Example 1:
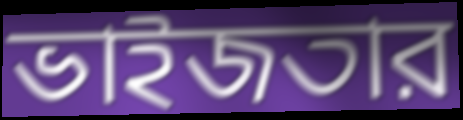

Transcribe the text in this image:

ভাইজতার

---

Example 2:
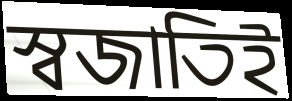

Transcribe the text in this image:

স্বজাতিই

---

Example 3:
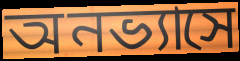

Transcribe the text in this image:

অনভ্যাসে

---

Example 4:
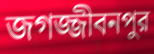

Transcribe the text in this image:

জগজ্জীবনপুর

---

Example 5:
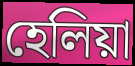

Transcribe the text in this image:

হেলিয়া